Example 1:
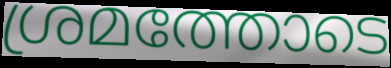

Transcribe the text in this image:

ശ്രമത്തോടെ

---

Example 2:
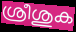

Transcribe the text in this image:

ശ്രീശുക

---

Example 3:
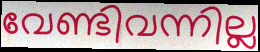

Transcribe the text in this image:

വേണ്ടിവന്നില്ല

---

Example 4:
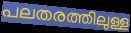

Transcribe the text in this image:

പലതരത്തിലുള്ള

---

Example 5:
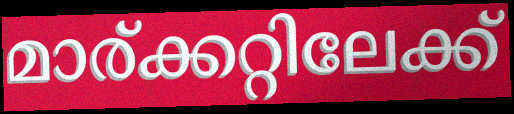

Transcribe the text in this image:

മാര്ക്കറ്റിലേക്ക്